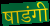
षाडंगी